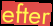
efter